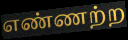
எண்ணற்ற